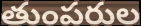
తుంపరుల